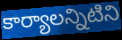
కార్యాలన్నిటిని